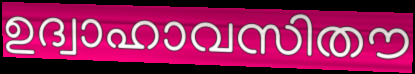
ഉദ്വാഹാവസിതൗ